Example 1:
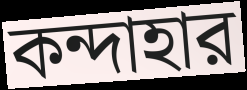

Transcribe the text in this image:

কন্দাহার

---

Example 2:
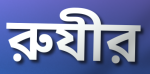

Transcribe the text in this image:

রুযীর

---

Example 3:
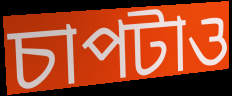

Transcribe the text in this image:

চাপটাও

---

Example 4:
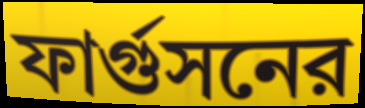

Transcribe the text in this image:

ফার্গুসনের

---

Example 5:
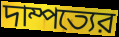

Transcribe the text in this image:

দাম্পত্যের